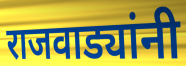
राजवाड्यांनी